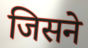
जिसने